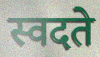
स्वदते